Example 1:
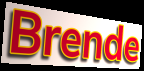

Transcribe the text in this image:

Brende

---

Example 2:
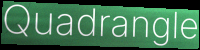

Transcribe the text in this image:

Quadrangle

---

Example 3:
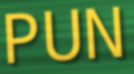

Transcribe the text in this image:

PUN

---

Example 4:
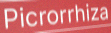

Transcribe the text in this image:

Picrorrhiza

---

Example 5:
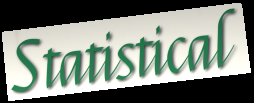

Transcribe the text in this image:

Statistical